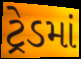
ટ્રેડમાં